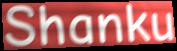
Shanku